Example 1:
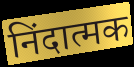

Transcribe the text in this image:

निंदात्मक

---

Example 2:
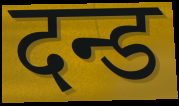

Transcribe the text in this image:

दन्ड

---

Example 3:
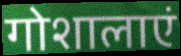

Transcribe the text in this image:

गोशालाएं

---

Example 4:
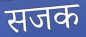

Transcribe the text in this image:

सजक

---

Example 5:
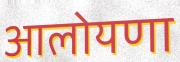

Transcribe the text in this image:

आलोयणा